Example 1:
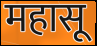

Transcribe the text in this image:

महासू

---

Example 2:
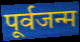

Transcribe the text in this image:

पूर्वजन्‍म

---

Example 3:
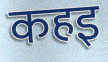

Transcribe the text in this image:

कहइ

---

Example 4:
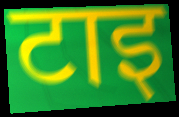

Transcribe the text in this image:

टाइ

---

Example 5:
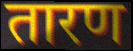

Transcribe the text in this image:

तारण